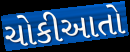
ચોકીઆતો